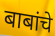
बाबांचे